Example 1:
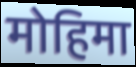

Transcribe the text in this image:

मोहिमा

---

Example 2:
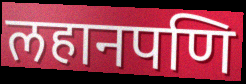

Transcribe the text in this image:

लहानपणि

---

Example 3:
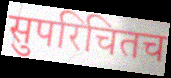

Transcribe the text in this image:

सुपरिचितच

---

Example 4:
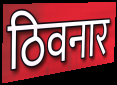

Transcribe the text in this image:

ठिवनार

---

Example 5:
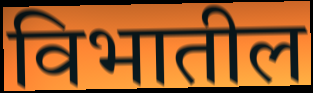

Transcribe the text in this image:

विभातील